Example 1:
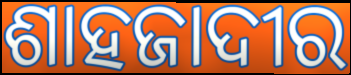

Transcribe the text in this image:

ଶାହଜାଦୀର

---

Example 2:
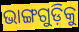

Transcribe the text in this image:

ଭାଙ୍ଗଗୁଡ଼ିକୁ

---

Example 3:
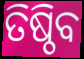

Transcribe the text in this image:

ତିଷ୍ଠିବ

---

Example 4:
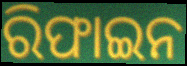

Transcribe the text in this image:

ରିଫାଇନ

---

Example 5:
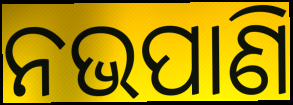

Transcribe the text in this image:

ନଭପାଣି